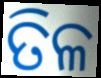
ତିଳ